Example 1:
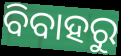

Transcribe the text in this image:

ବିବାହରୁ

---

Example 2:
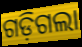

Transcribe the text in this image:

ଗଡ଼ିଗଲା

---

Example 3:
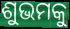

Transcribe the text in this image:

ଶୁଭମକୁ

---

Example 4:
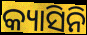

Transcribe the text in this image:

କ୍ୟାସିନି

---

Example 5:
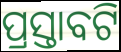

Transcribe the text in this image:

ପ୍ରସ୍ତାବଟି